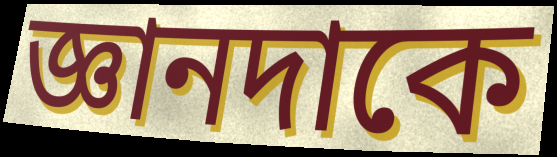
জ্ঞানদাকে